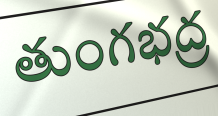
తుంగభద్ర